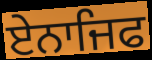
ਏਨਾਜਿਫ